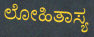
ಲೋಹಿತಾಸ್ಯ